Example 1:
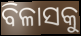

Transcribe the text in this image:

ବିଳାସକୁ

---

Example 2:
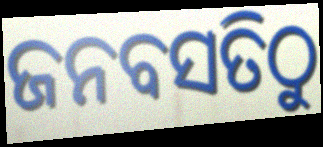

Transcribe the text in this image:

ଜନବସତିଠୁ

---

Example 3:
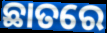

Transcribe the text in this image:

ଛାତରେ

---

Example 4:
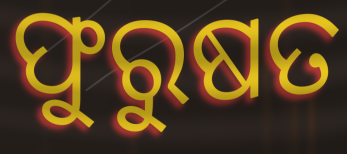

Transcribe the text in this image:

ଫୁରୁଷତ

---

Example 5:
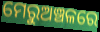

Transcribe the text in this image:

ମେରୁଅଞ୍ଚଳରେ